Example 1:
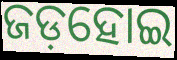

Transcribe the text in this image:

ଜଡ଼ହୋଇ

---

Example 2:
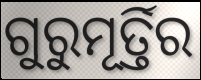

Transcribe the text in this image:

ଗୁରୁମୂର୍ତ୍ତିର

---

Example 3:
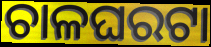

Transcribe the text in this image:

ଚାଳଘରଟା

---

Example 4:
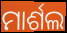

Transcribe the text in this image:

ମାର୍ଶଲ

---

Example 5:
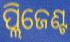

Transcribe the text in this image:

ପ୍ଲିଜେଣ୍ଟ